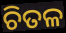
ଚିତଳ